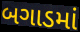
બગાડમાં